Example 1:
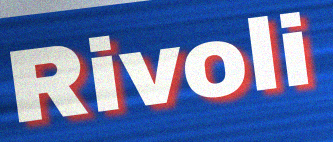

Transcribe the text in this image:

Rivoli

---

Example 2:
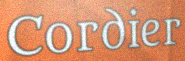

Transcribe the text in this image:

Cordier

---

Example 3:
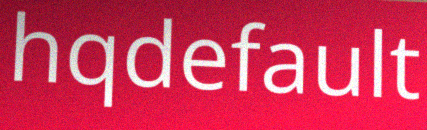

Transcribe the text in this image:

hqdefault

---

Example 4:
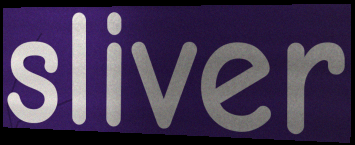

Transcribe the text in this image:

sliver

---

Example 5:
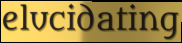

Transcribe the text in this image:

elucidating